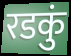
रडकुं